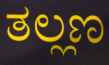
ತಲ್ಲಣ